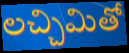
లచ్చిమితో